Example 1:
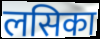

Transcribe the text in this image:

लसिका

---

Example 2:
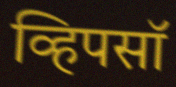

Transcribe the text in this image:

व्हिपसॉ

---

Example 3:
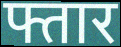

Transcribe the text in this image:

फ्तार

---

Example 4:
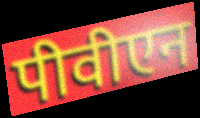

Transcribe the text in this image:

पीवीएन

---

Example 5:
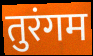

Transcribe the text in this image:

तुरंगम